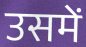
उसमें